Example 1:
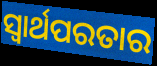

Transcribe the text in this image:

ସ୍ଵାର୍ଥପରତାର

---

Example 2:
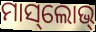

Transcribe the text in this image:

ମାସ୍‌ଲୋଭ୍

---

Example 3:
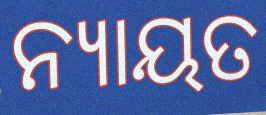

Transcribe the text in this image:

ନ୍ୟାୟତ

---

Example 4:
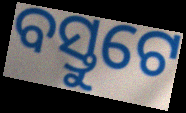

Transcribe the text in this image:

ବସ୍ତୁଟେ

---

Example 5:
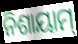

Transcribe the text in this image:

ନିଶାୟାମ୍